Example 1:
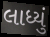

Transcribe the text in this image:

લાધ્યું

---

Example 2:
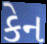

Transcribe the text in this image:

કેન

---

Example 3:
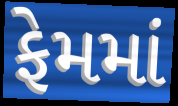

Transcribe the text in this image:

ફેમમાં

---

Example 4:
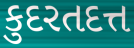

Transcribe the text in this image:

કુદરતદત્ત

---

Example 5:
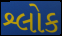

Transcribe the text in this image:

શ્લોક